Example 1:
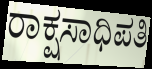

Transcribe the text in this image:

ರಾಕ್ಷಸಾಧಿಪತಿ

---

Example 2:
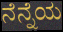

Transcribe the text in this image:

ನೆನ್ನೆಯ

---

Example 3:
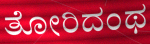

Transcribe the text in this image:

ತೋರಿದಂಥ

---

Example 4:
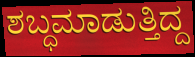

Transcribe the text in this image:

ಶಬ್ಧಮಾಡುತ್ತಿದ್ದ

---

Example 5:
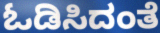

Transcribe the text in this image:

ಓಡಿಸಿದಂತೆ